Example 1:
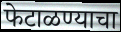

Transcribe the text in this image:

फेटाळण्याचा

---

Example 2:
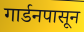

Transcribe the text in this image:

गार्डनपासून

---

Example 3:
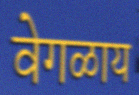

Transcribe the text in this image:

वेगळाय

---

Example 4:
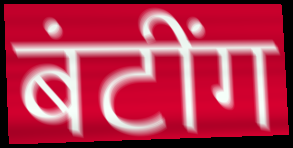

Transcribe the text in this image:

बंटींग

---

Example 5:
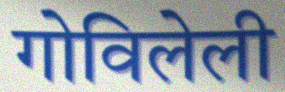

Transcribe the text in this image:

गोविलेली